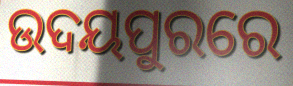
ଉଦୟପୁରରେ